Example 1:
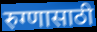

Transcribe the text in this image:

रुग्णासाठी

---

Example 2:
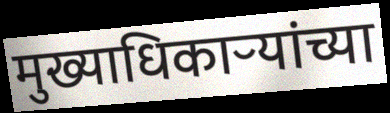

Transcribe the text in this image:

मुख्याधिकाऱ्यांच्या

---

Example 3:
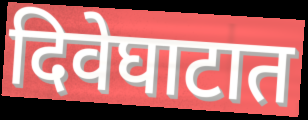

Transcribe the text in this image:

दिवेघाटात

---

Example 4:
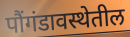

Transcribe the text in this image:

पौंगंडावस्थेतील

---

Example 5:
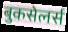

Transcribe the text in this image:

बुकसेलर्स